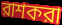
রাশকরা